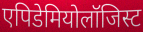
एपिडेमियोलॉजिस्ट